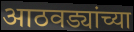
आठवड्यांच्या